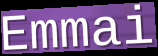
Emmai